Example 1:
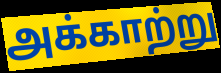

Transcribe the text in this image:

அக்காற்று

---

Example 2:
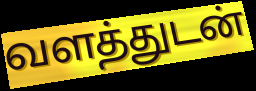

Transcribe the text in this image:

வளத்துடன்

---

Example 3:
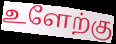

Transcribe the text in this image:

உளேற்கு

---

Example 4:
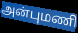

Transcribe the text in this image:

அன்புமணி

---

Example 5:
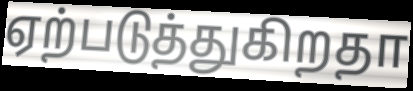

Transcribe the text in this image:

ஏற்படுத்துகிறதா